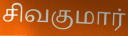
சிவகுமார்